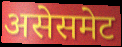
असेसमेट